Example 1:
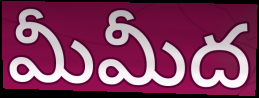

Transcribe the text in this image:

మీమీద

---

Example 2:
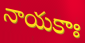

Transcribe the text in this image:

నాయకాః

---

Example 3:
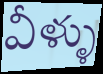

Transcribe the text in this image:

వీళ్ళు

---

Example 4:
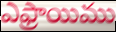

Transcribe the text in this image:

ఎఫ్రాయిము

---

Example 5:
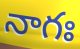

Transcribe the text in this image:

నాగః